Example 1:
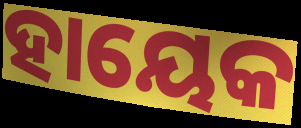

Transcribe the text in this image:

ହାୟେକ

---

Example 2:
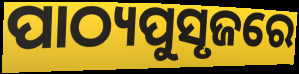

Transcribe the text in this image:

ପାଠ୍ୟପୁସୃଜରେ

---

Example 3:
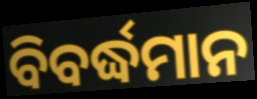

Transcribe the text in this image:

ବିବର୍ଦ୍ଧମାନ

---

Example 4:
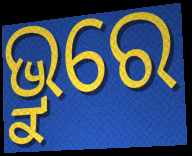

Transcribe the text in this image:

ଭ୍ରୁରେ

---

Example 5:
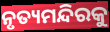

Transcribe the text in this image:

ନୃତ୍ୟମନ୍ଦିରକୁ